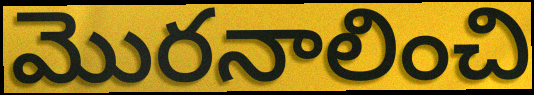
మొరనాలించి